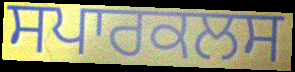
ਸਪਾਰਕਲਸ